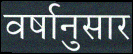
वर्षानुसार